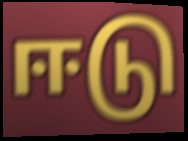
ஈடு